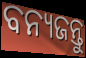
ବନ୍ୟଜନ୍ତୁ